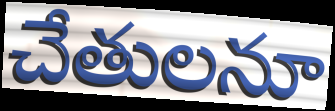
చేతులనూ